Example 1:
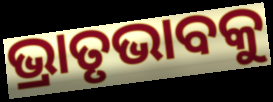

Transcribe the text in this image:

ଭ୍ରାତୃଭାବକୁ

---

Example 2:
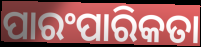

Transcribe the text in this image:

ପାରଂପାରିକତା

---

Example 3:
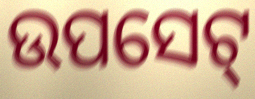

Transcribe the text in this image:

ଉପସେଟ୍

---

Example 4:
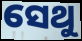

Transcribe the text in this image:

ସେଥୁ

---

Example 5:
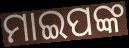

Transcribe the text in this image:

ମାଇପଙ୍କ